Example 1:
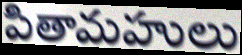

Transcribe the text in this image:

పితామహులు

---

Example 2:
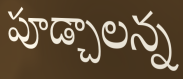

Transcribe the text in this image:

పూడ్చాలన్న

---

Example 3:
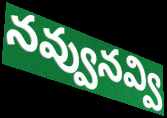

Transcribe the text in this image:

నవ్వునవ్వి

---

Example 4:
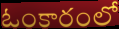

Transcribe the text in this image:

ఓంకారంలో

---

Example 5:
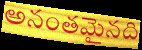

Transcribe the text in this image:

అనంతమైనది